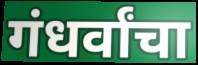
गंधर्वांचा